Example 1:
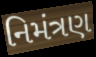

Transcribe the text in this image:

નિમંત્રણ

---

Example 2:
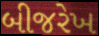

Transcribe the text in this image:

બીજરેખ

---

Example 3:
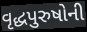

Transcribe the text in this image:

વૃદ્ધપુરુષોની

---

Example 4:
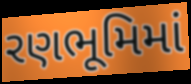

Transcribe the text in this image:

રણભૂમિમાં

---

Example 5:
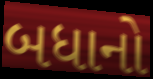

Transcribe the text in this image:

બધાનો